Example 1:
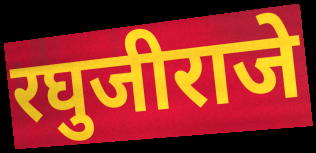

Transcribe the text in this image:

रघुजीराजे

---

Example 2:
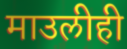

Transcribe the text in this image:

माउलीही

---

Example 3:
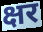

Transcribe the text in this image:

क्षर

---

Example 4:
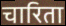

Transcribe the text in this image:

चारिता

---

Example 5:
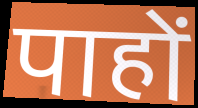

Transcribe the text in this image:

पाहों